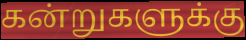
கன்றுகளுக்கு